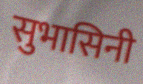
सुभासिनी